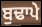
ਬੁਢਾਪੇ